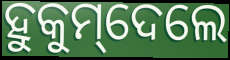
ହୁକୁମ୍‌ଦେଲେ